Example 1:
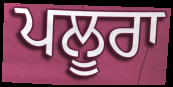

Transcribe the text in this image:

ਪਲੂਰਾ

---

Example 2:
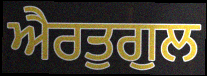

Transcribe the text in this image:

ਐਰਤੁਗੁਲ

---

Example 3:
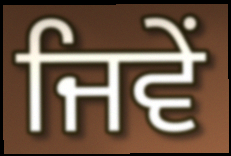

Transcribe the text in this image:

ਜਿਵੇੰ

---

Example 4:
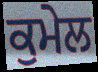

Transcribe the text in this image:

ਕੁਮੇਲ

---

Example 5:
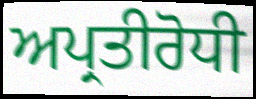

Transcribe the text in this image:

ਅਪ੍ਰਤੀਰੋਧੀ